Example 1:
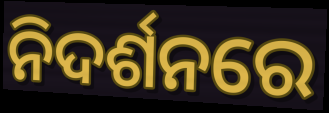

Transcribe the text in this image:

ନିଦର୍ଶନରେ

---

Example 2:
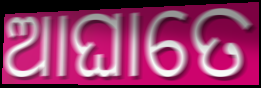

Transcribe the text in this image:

ଆଘାତେ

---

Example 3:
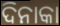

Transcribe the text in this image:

ଦିନାକା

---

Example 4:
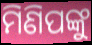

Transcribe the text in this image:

ମିଣିପଙ୍କୁ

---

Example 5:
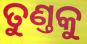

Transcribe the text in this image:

ତୁଣ୍ତକୁ